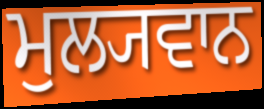
ਮੁਲ੍ਯਵਾਨ